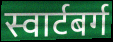
स्वार्टबर्ग